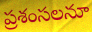
ప్రశంసలనూ